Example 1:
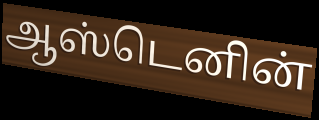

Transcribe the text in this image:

ஆஸ்டெனின்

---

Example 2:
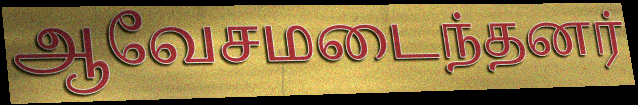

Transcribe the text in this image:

ஆவேசமடைந்தனர்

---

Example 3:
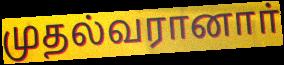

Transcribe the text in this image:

முதல்வரானார்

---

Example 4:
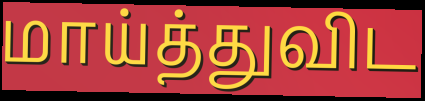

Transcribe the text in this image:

மாய்த்துவிட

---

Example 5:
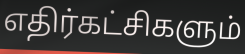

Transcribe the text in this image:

எதிர்கட்சிகளும்